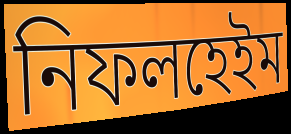
নিফলহেইম